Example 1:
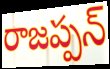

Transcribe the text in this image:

రాజప్పన్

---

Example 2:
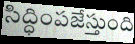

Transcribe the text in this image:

సిద్ధింపజేస్తుంది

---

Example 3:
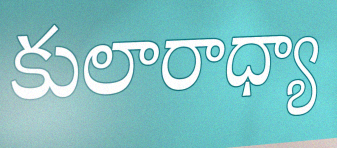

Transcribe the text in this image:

కులారాధ్యా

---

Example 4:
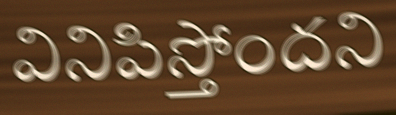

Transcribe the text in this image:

వినిపిస్తోందని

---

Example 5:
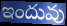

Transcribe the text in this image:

ఇందువు